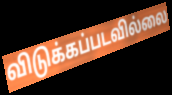
விடுக்கப்படவில்லை